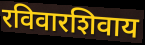
रविवारशिवाय